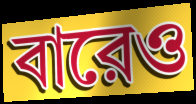
বারেও